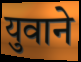
युवाने